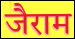
जैराम